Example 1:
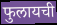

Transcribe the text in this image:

फुलायची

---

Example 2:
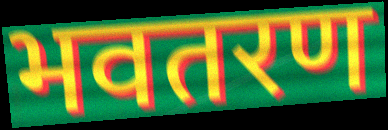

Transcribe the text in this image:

भवतरण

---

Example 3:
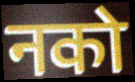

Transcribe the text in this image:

नको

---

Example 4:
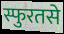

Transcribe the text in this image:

स्फुरतसे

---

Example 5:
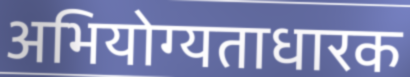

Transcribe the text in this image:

अभियोग्यताधारक